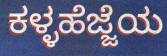
ಕಳ್ಳಹೆಜ್ಜೆಯ